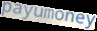
payumoney